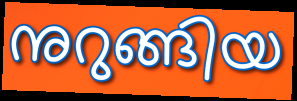
നുറുങ്ങിയ